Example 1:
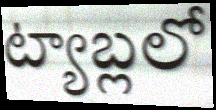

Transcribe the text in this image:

ట్యాబ్లలో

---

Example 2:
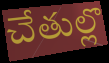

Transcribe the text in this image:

చేతుల్లొ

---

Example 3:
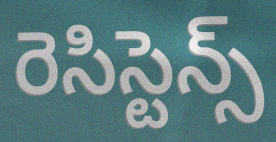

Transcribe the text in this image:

రెసిస్టెన్స్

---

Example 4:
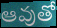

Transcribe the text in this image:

ఆవుతో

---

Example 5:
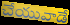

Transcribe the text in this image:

చేయువాడే